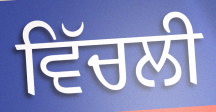
ਵਿੱਚਲੀ